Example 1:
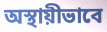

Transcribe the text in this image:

অস্থায়ীভাবে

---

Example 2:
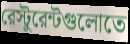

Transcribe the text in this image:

রেস্টুরেন্টগুলোতে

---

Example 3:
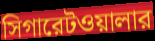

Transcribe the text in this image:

সিগারেটওয়ালার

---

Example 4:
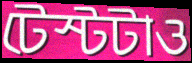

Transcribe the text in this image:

টেস্টটাও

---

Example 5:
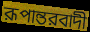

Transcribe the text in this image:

রূপান্তরবাদী